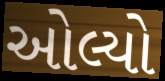
ઓલ્યો